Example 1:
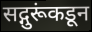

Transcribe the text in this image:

सद्गुरूंकडून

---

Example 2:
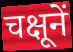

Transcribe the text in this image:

चक्षूनें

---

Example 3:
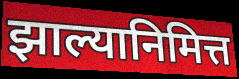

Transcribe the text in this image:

झाल्यानिमित्त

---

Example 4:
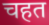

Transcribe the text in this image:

चहत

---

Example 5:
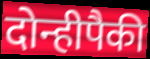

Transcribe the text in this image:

दोन्हीपैकी